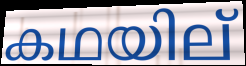
കഥയില്